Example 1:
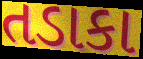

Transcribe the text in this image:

તડાકા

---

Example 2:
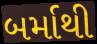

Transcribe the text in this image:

બર્માથી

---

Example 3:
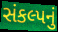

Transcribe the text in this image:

સંકલ્પનું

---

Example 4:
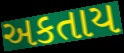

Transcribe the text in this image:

અકતાય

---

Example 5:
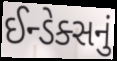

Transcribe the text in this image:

ઈન્ડેક્સનું